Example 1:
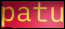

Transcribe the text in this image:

patu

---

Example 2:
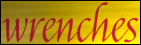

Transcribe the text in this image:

wrenches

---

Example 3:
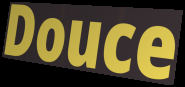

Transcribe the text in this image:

Douce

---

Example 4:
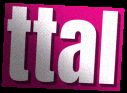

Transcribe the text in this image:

ttal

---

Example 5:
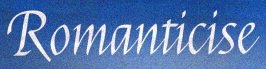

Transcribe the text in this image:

Romanticise